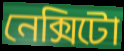
নেক্সিটো